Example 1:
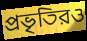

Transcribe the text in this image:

প্রভৃতিরও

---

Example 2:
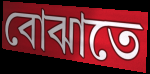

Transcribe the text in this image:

বোঝাতে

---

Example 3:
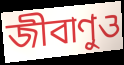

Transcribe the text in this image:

জীবাণুও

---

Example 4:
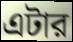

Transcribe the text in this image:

এটার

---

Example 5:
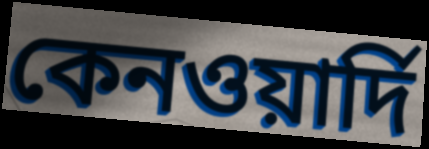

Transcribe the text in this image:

কেনওয়ার্দি